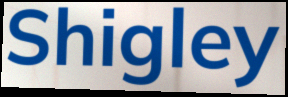
Shigley